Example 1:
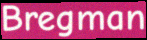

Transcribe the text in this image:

Bregman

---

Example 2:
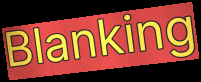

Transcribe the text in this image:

Blanking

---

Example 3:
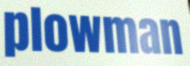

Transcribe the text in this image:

plowman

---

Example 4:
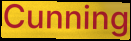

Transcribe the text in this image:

Cunning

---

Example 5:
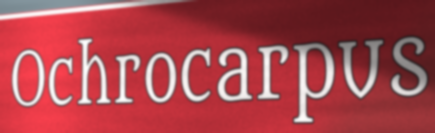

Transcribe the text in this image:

Ochrocarpus